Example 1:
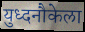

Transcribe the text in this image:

युध्दनौकेला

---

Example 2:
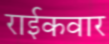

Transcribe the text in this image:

राईकवार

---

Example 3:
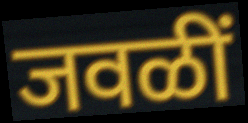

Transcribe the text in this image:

जवळीं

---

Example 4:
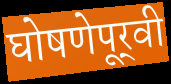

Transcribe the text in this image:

घोषणेपूर्वी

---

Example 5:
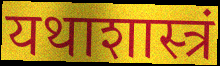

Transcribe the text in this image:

यथाशास्त्रं